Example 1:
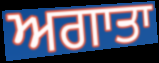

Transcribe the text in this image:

ਅਗਾਤਾ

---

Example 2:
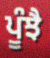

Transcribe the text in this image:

ਪੂੰਝੈ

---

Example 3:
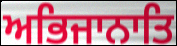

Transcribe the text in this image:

ਅਭਿਜਾਨਾਤਿ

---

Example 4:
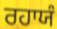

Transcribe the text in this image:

ਰਹਾਯੰ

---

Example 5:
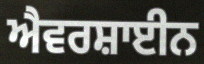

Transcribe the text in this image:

ਐਵਰਸ਼ਾਈਨ